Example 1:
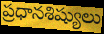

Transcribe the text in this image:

ప్రధానశిష్యులు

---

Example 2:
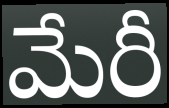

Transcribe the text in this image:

మేరీ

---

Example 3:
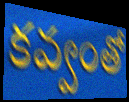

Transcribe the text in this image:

కవ్వంతో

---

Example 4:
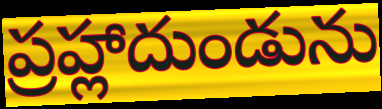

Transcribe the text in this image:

ప్రహ్లాదుండును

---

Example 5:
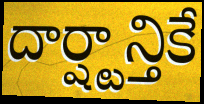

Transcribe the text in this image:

దార్ష్టాన్తికే